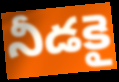
నీడకై